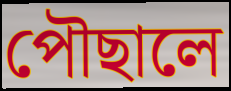
পৌছালে